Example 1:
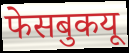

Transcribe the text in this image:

फेसबुकयू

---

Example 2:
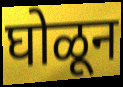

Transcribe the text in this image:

घोळून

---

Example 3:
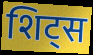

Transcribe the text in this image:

शिट्स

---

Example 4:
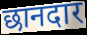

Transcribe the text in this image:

छानदार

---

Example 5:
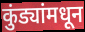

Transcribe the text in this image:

कुंड्यांमधून